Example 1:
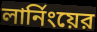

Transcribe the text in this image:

লার্নিংয়ের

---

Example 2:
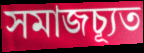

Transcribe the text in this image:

সমাজচ্যূত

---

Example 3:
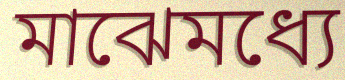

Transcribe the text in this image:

মাঝেমধ্যে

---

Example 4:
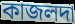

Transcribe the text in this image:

কাজলদা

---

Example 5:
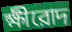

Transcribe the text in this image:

ক্ষীরোদ